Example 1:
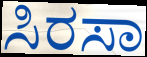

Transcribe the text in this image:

ಸಿರಸಾ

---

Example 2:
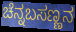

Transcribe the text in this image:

ಚೆನ್ನಬಸಣ್ಣನ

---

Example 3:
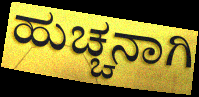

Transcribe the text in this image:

ಹುಚ್ಚನಾಗಿ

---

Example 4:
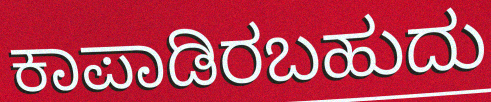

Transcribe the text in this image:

ಕಾಪಾಡಿರಬಹುದು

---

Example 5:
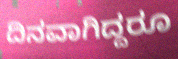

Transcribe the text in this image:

ದಿನವಾಗಿದ್ದರೂ